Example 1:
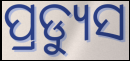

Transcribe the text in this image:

ପ୍ରଡ୍ୟୁସ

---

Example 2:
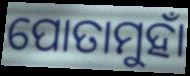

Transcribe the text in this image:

ପୋତାମୁହାଁ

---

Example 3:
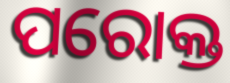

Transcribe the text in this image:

ପରୋକ୍ତ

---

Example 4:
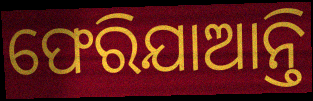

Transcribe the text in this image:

ଫେରିଯାଆନ୍ତି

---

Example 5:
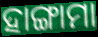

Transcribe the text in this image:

ହାଙ୍ଗାମା